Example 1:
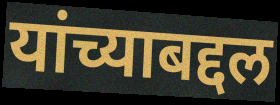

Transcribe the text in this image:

यांच्याबद्दल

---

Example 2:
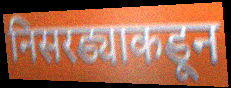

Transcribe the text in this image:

निसरड्याकडून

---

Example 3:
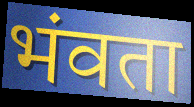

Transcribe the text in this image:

भंवता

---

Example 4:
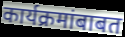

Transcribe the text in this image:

कार्यक्रमांबाबत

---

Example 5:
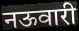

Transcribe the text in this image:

नऊवारी